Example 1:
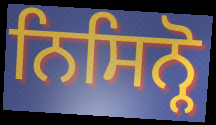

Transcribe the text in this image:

ਨਿਸਿਨ੍ਨੋ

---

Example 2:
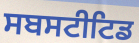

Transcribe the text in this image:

ਸਬਸਟੀਟਿਡ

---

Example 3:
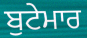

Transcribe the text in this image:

ਬੁਟੇਮਾਰ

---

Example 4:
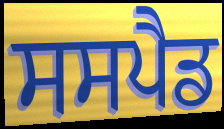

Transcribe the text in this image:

ਸਸਪੈਡ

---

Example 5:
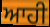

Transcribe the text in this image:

ਆਹੀ